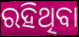
ରହିଥିବା